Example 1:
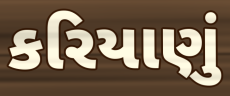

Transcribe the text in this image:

કરિયાણું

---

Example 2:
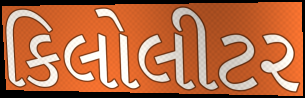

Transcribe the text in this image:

કિલોલીટર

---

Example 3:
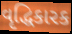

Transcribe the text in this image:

વૃદ્ધિકારક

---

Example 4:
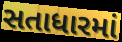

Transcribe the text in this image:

સતાધારમાં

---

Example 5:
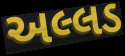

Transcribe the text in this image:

અલ્લડ